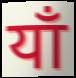
याँ